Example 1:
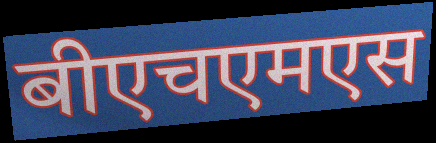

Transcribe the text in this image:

बीएचएमएस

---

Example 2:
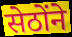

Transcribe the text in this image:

सेठोंने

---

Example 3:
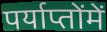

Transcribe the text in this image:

पर्याप्तोंमें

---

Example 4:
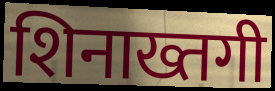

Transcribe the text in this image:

शिनाख्तगी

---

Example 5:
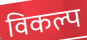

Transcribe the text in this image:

विकल्प